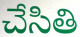
చేసితి